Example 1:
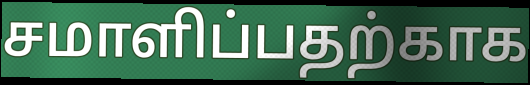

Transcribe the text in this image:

சமாளிப்பதற்காக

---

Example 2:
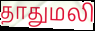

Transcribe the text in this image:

தாதுமலி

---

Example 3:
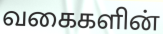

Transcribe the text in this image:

வகைகளின்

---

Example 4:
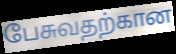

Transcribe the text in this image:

பேசுவதற்கான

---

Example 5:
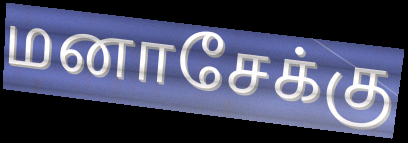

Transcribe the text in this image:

மனாசேக்கு